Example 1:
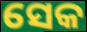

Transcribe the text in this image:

ସେକ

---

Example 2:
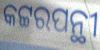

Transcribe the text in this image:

କଟ୍ଟରପନ୍ଥୀ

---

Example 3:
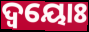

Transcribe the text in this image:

ଦ୍ବୟୋଃ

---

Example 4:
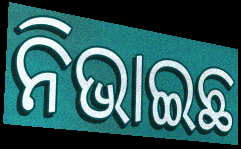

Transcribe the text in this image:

ନିଭାଇଛ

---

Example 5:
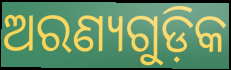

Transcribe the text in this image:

ଅରଣ୍ୟଗୁଡ଼ିକ